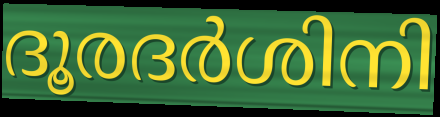
ദൂരദർശിനി